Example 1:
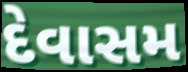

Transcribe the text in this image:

દેવાસમ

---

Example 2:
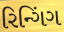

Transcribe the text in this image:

રિન્ગિંગ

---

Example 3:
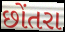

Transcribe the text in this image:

છોંતરા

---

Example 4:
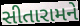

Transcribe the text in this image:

સીતારામને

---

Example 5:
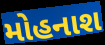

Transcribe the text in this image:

મોહનાશ